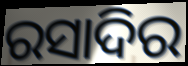
ରସାଦିର